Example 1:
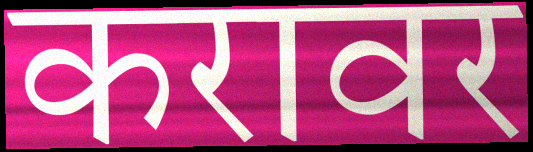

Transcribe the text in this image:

करावर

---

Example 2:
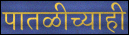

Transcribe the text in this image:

पातळीच्याही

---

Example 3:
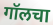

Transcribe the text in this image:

गॉलचा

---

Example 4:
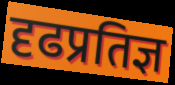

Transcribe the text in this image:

दृढप्रतिज्ञ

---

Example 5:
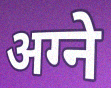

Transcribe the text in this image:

अग्ने